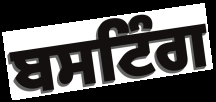
ਬਸਟਿੰਗ